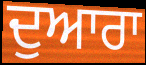
ਦੁਆਰਾ